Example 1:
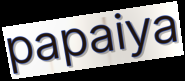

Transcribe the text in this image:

papaiya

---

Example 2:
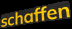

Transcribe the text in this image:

schaffen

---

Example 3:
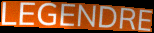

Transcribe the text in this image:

LEGENDRE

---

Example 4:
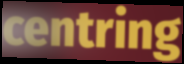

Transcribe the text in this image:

centring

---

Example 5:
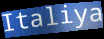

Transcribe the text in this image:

Italiya